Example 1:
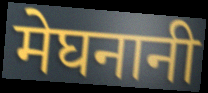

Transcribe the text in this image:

मेघनानी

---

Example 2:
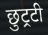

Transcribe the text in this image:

छुट्रटी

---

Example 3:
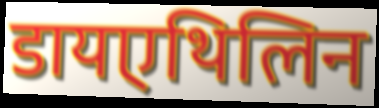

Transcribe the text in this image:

डायएथिलिन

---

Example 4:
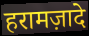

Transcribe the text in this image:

हरामज़ादे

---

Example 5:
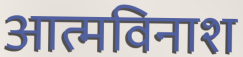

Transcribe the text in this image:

आत्मविनाश